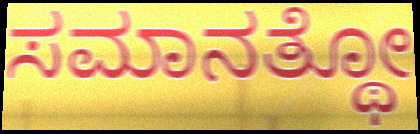
ಸಮಾನತ್ಥೋ